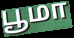
பூமா